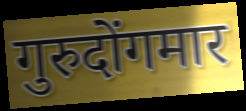
गुरुदोंगमार